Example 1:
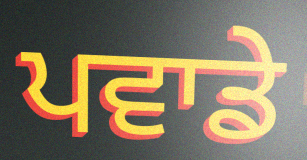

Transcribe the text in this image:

ਪਵਾਡੇ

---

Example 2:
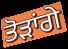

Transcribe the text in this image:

ਤੋੜਾਂਗੇ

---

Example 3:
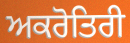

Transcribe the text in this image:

ਅਕਰੋਤਿਰੀ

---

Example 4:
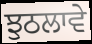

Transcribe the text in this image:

ਝੁਠਲਾਵੇ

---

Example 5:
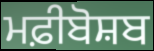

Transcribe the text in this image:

ਮਫ਼ੀਬੋਸ਼ਬ